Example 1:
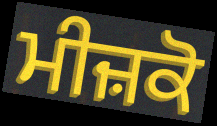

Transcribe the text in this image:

ਮੀਜ਼ਕੋ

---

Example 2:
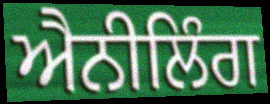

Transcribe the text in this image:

ਐਨੀਲਿੰਗ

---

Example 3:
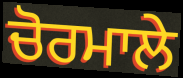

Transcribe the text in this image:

ਚੋਰਮਾਲੇ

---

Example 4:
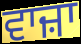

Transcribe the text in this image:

ਵਾਜ਼ਾ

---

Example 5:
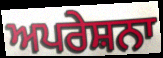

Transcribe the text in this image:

ਅਪਰੇਸ਼ਨਾ